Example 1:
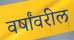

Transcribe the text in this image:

वर्षांवरील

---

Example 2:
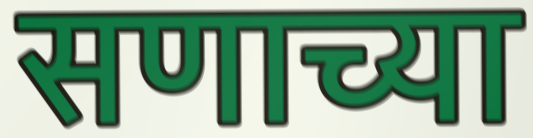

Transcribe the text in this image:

सणाच्या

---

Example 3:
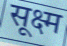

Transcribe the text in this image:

सूक्ष्म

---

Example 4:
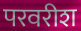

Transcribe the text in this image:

परवरीश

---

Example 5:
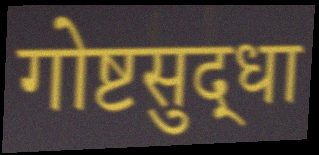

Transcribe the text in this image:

गोष्टसुद्धा